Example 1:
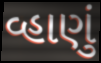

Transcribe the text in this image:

વ્હાણું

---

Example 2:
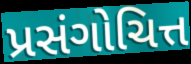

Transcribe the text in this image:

પ્રસંગોચિત્ત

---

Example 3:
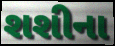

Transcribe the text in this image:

શશીના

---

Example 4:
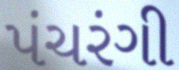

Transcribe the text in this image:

પંચરંગી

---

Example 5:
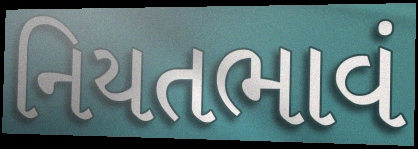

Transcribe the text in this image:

નિયતભાવં